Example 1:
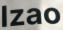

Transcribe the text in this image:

Izao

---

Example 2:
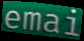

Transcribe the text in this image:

emai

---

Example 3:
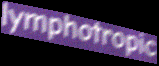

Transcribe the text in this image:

lymphotropic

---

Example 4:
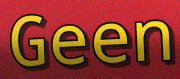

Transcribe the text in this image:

Geen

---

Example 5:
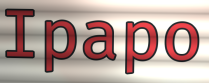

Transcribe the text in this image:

Ipapo